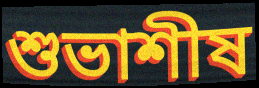
শুভাশীষ